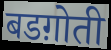
बडग़ोती